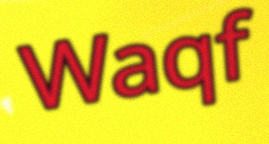
Waqf